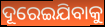
ଦୂରେଇଯିବାକୁ